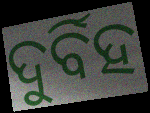
ଦୁର୍ବିହ